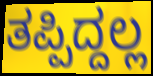
ತಪ್ಪಿದ್ದಲ್ಲ